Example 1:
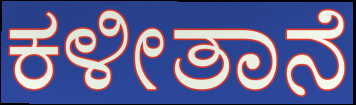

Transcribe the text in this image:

ಕಳೀತಾನೆ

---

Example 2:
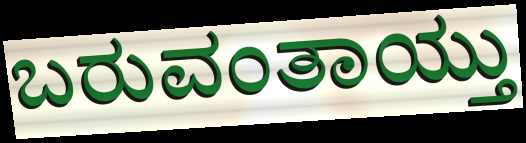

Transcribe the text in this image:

ಬರುವಂತಾಯ್ತು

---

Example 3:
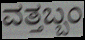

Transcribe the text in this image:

ವತ್ತಬ್ಬಂ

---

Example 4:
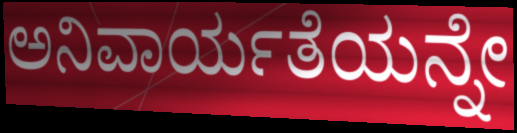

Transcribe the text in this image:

ಅನಿವಾರ್ಯತೆಯನ್ನೇ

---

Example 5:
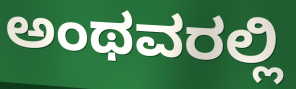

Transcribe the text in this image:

ಅಂಥವರಲ್ಲಿ